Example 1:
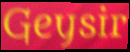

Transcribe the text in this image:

Geysir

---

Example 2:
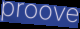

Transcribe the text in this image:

proove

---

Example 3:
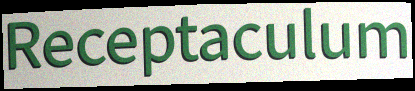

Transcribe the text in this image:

Receptaculum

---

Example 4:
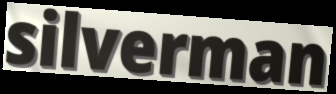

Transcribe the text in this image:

silverman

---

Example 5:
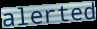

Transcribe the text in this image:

alerted